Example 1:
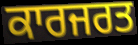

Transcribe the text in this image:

ਕਾਰਜਰਤ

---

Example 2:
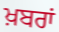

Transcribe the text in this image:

ਖ਼ਬਰਾਂ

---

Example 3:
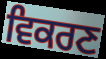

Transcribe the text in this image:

ਵਿਕਰਣ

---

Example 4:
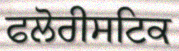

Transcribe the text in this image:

ਫਲੋਰੀਸਟਿਕ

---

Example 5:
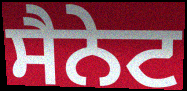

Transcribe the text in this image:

ਸੈਨੇਟ